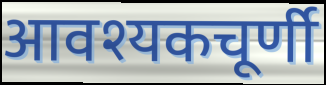
आवश्यकचूर्णी